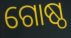
ଗୋଷ୍ଠ